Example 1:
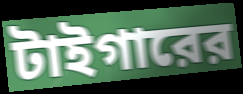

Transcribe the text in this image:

টাইগারের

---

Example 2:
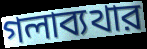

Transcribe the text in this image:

গলাব্যথার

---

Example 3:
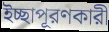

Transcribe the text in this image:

ইচ্ছাপূরণকারী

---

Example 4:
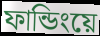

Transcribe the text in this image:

ফান্ডিংয়ে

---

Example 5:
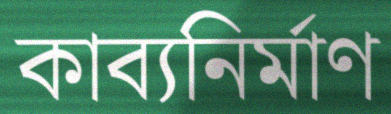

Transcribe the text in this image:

কাব্যনির্মাণ